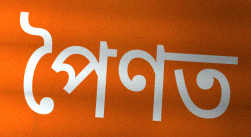
পৈণত